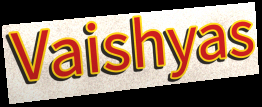
Vaishyas